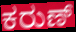
ಕರುಣ್